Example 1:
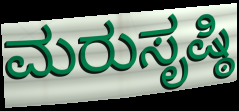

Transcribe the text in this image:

ಮರುಸೃಷ್ಠಿ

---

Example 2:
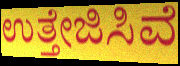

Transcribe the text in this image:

ಉತ್ತೇಜಿಸಿವೆ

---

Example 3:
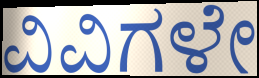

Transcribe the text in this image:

ವಿವಿಗಳೇ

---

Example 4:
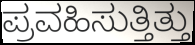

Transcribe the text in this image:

ಪ್ರವಹಿಸುತ್ತಿತ್ತು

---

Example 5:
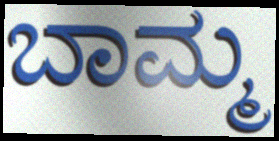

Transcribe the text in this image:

ಬಾಮ್ಮ